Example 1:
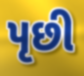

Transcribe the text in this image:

પૃછી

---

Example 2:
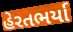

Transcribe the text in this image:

હેરતભર્યા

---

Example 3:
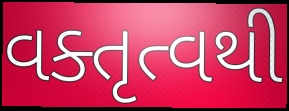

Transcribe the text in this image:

વક્તૃત્વથી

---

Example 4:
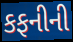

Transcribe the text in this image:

કફનીની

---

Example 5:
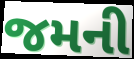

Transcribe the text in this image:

જમની